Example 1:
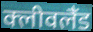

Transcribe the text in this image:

क्‍लीवलैंड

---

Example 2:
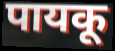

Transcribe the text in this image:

पायकू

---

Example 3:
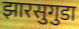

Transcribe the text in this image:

झारसुगुडा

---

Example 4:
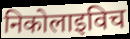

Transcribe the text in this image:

निकोलाइविच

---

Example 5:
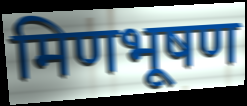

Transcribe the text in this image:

मिणभूषण